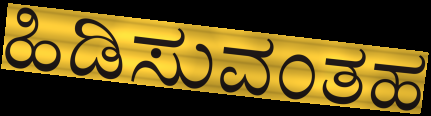
ಹಿಡಿಸುವಂತಹ